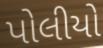
પોલીયો